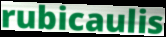
rubicaulis